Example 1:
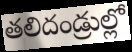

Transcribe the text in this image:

తలిదండ్రుల్లో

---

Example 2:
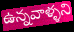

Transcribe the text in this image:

ఉన్నవాళ్ళని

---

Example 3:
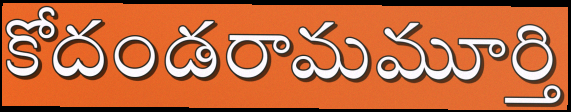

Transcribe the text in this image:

కోదండరామమూర్తి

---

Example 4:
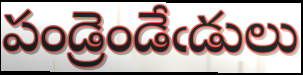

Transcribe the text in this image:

పండ్రెండేఁడులు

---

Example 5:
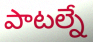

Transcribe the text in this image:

పాటల్నే